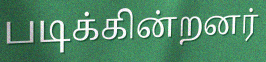
படிக்கின்றனர்